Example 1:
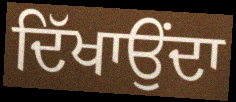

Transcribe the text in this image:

ਦਿੱਖਾਉਂਦਾ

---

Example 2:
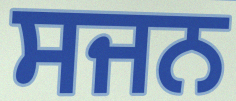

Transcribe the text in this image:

ਸਜਨ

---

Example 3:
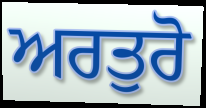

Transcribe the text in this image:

ਅਰਤੁਰੋ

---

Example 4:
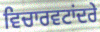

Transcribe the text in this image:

ਵਿਚਾਰਵਟਾਂਦਰੇ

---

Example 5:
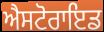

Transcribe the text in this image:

ਐਸਟੋਰਾਇਡ